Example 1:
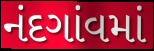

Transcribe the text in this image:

નંદગાંવમાં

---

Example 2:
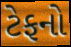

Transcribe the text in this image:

ટેફનો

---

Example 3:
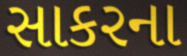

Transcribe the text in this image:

સાકરના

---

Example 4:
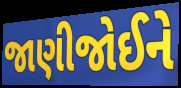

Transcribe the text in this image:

જાણીજોઈને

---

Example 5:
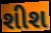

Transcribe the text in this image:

શીશ